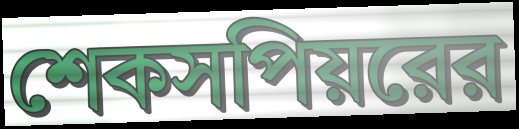
শেকসপিয়রের